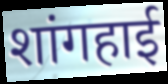
शांगहाई